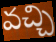
వచ్చి